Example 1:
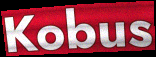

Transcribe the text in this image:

Kobus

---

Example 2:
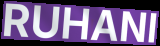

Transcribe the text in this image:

RUHANI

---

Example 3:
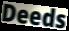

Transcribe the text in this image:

Deeds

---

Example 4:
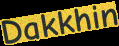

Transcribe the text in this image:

Dakkhin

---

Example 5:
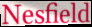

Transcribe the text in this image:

Nesfield